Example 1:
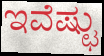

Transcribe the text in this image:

ಇವೆಷ್ಟು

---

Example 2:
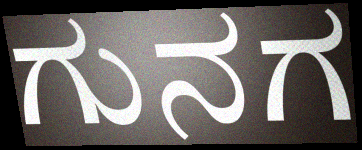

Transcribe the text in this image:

ಗುನಗ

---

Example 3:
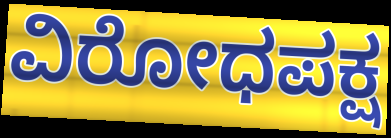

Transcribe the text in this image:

ವಿರೋಧಪಕ್ಷ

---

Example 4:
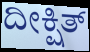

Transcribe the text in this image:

ದೀಕ್ಷಿತ್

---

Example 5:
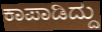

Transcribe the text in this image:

ಕಾಪಾಡಿದ್ದು